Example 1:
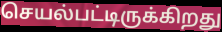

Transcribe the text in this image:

செயல்பட்டிருக்கிறது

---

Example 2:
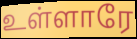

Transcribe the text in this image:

உள்ளாரே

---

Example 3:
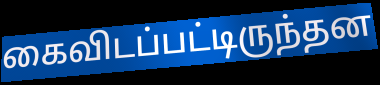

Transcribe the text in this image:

கைவிடப்பட்டிருந்தன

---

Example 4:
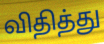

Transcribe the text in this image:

விதித்து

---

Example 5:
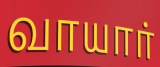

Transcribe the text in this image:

வாயார்